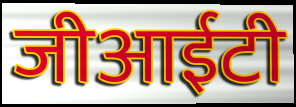
जीआईटी